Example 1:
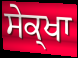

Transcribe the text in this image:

ਸੇਕ੍ਖਾ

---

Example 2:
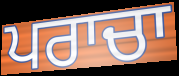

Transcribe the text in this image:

ਪਰਾਚਾ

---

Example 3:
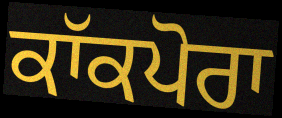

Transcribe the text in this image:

ਕਾੱਕਪੋਰਾ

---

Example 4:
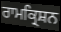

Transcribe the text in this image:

ਰਾਮਕ੍ਰਿਸ਼ਨ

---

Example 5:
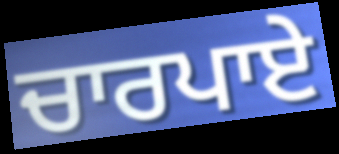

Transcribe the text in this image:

ਚਾਰਪਾਏ